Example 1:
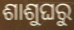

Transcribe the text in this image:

ଶାଶୁଘରୁ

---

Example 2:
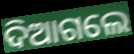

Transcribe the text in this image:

ଦିଆଗଲେ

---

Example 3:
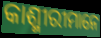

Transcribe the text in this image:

କାଶ୍ମୀରୀମାନେ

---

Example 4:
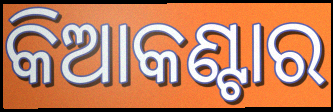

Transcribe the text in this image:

କିଆକଣ୍ଟାର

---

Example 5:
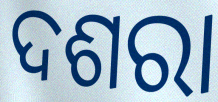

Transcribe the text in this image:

ଦଶରା